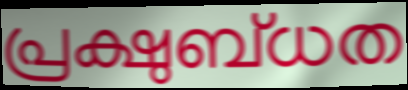
പ്രക്ഷുബ്ധത